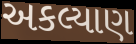
અકલ્યાણ